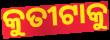
କୁତୀଟାକୁ